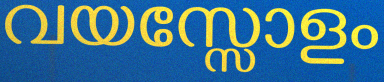
വയസ്സോളം